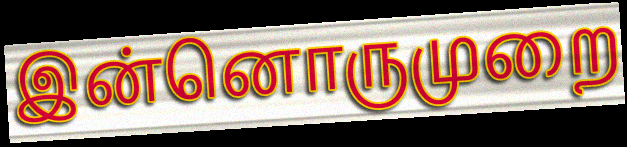
இன்னொருமுறை